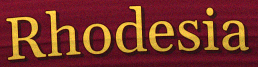
Rhodesia